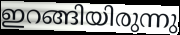
ഇറങ്ങിയിരുന്നു